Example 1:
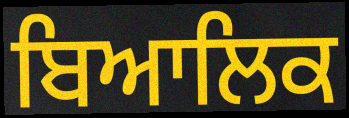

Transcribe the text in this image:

ਬਿਆਲਿਕ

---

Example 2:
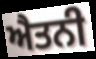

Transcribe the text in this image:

ਐਤਨੀ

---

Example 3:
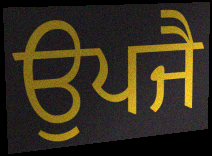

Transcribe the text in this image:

ਉਪਜੈ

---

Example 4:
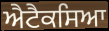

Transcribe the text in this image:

ਐਟੈਕਸਿਆ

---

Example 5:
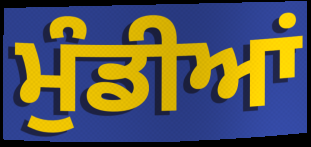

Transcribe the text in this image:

ਮੁੰਡੀਆਂ